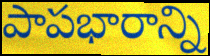
పాపభారాన్ని